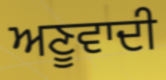
ਅਣੂਵਾਦੀ